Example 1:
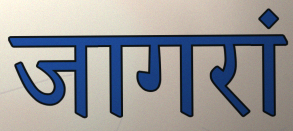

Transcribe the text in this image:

जागरां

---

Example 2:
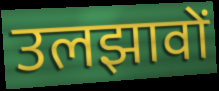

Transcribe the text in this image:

उलझावों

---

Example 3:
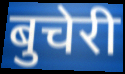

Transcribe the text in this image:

बुचेरी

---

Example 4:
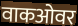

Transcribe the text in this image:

वाकओवर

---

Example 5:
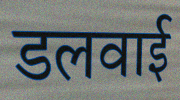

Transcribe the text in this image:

डलवाई